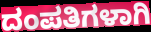
ದಂಪತಿಗಳಾಗಿ